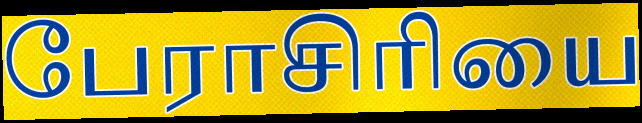
பேராசிரியை